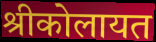
श्रीकोलायत